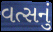
વત્સનું